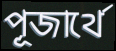
পূজার্থে